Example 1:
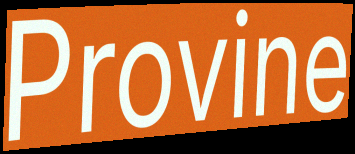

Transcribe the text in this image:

Provine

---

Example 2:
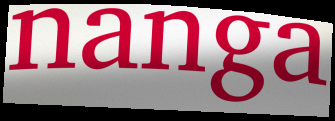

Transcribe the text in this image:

nanga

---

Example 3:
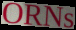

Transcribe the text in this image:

ORNs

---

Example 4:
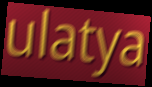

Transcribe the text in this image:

ulatya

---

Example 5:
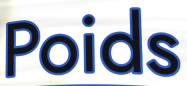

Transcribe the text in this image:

Poids